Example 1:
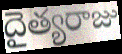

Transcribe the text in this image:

దైత్యరాజు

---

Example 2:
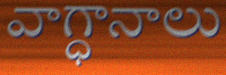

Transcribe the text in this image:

వాగ్ధానాలు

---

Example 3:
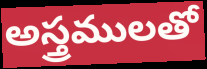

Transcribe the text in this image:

అస్త్రములతో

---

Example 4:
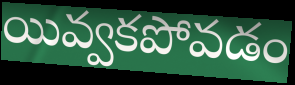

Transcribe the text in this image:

యివ్వకపోవడం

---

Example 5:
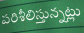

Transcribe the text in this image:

పరిశీలిస్తున్నట్లు